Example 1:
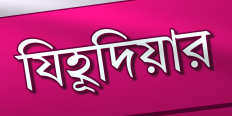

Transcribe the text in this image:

যিহূদিয়ার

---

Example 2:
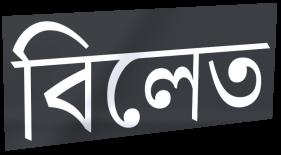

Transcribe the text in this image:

বিলেত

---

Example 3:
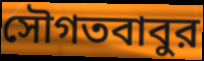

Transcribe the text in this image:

সৌগতবাবুর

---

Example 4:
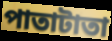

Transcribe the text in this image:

পাতাটাতা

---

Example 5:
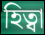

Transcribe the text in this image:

হিত্বা